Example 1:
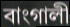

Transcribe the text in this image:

বাংগালী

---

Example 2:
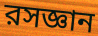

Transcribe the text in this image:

রসজ্ঞান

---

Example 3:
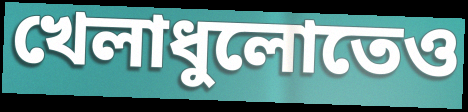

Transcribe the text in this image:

খেলাধুলোতেও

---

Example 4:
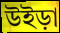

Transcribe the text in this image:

উইড়া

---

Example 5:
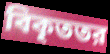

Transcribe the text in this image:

বিকৃততর